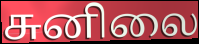
சுனிலை